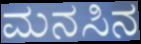
ಮನಸಿನ